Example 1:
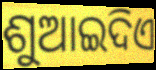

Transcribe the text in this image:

ଶୁଆଇଦିଏ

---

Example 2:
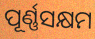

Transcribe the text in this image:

ପୂର୍ଣ୍ଣସକ୍ଷମ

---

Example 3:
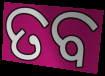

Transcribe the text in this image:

ତବ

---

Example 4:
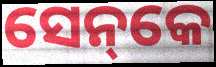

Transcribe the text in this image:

ସେନ୍‌କେ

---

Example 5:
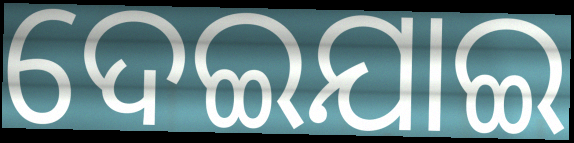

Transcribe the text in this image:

ଦେଇଯାଇ